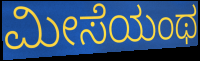
ಮೀಸೆಯಂಥ